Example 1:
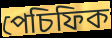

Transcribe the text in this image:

পেচিফিক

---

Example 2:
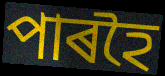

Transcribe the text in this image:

পাৰহৈ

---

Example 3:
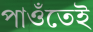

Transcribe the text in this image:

পাওঁতেই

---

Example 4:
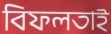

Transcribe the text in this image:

বিফলতাই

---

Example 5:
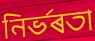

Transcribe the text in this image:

নিৰ্ভৰতা